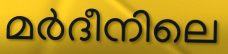
മർദീനിലെ